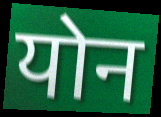
योन